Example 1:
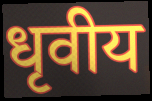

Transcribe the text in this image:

धृवीय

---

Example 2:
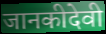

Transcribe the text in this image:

जानकीदेवी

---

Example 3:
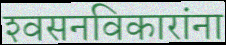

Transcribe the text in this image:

श्वसनविकारांना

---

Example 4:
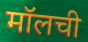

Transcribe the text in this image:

मॉलची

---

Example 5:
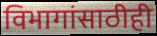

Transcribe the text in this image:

विभागांसाठीही